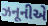
ઝનૂનીએ